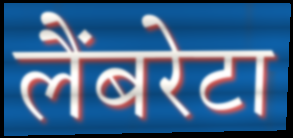
लैंबरेटा